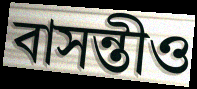
বাসন্তীও